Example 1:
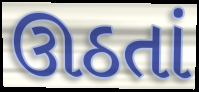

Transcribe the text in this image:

ઊઠતાં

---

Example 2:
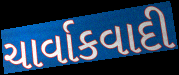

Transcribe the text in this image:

ચાર્વાકવાદી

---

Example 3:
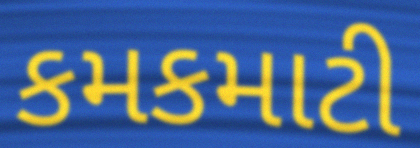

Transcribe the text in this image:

કમકમાટી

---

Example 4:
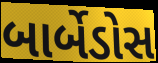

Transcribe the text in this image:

બાર્બેડોસ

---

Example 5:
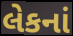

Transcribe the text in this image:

લેકનાં